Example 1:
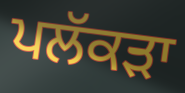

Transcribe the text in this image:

ਪਲੱਕੜਾ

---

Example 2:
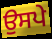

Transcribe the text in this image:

ਉਸਪੇ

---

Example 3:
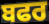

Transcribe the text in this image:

ਬਫਰ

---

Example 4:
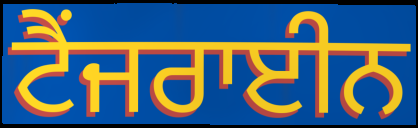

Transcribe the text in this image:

ਟੈਂਜਰਾਈਨ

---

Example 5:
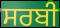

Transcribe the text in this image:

ਸਰਬੀ